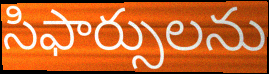
సిఫార్సులను